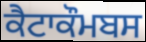
ਕੈਟਾਕੌਮਬਸ